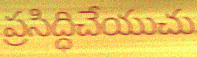
ప్రసిద్ధిచేయుచు